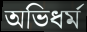
অভিধর্ম